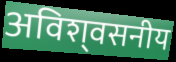
अविश्वसनीय